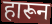
हारून